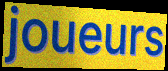
joueurs